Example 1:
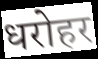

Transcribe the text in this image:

धरोहर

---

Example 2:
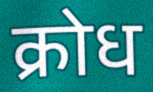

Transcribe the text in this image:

क्रोध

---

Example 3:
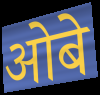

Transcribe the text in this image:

ओबे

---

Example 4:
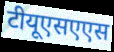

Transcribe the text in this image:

टीयूएसएएस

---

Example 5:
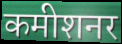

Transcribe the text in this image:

कमीशनर